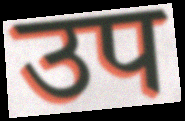
उप